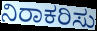
ನಿರಾಕರಿಸು